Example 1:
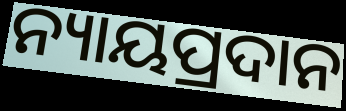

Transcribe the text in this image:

ନ୍ୟାୟପ୍ରଦାନ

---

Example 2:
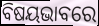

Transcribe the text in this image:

ବିଷୟଭାବରେ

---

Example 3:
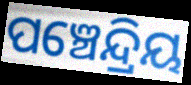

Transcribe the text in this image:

ପଞ୍ଚେନ୍ଦ୍ରିୟ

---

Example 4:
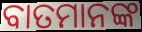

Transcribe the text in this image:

ବାତମାନଙ୍କ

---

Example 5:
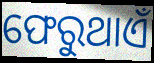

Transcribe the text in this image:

ଫେରୁଥାଏଁ